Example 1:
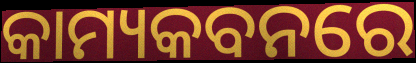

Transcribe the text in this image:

କାମ୍ୟକବନରେ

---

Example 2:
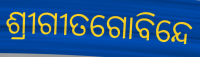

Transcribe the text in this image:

ଶ୍ରୀଗୀତଗୋବିନ୍ଦେ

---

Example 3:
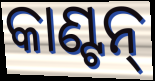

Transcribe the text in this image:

କାଣ୍ଟନ୍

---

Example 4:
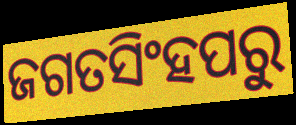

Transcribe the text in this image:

ଜଗତସିଂହପରୁ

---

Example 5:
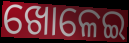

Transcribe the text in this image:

ଖୋଳେଇ